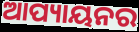
ଆପ୍ୟାୟନର